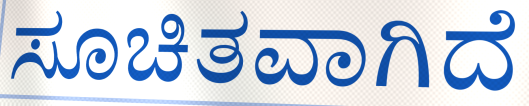
ಸೂಚಿತವಾಗಿದೆ